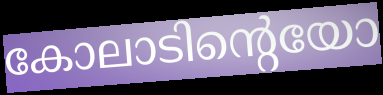
കോലാടിന്റെയോ